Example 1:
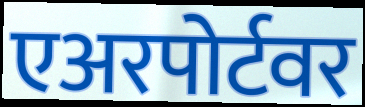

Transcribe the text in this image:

एअरपोर्टवर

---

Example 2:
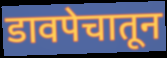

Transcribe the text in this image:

डावपेचातून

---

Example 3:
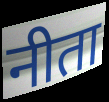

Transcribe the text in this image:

नीता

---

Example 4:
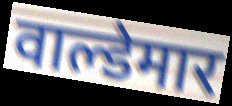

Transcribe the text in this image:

वाल्डेमार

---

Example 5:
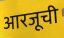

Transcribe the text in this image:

आरजूची